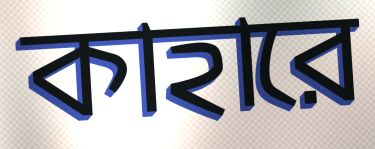
কাহারে